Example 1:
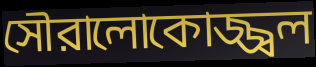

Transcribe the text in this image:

সৌরালোকোজ্জ্বল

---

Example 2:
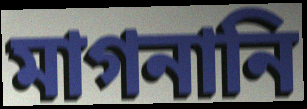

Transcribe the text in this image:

মাগনানি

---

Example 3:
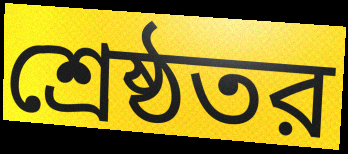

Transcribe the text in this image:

শ্রেষ্ঠতর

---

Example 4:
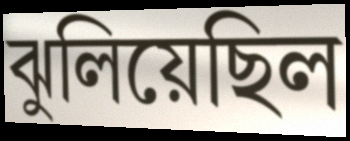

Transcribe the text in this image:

ঝুলিয়েছিল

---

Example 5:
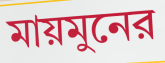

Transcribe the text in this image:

মায়মুনের